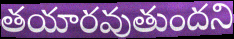
తయారవుతుందని